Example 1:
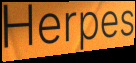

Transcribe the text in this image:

Herpes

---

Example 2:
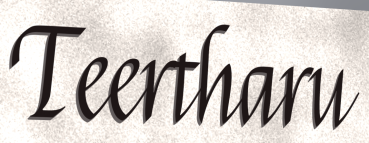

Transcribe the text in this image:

Teertharu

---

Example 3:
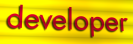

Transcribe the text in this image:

developer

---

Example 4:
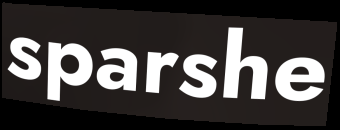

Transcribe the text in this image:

sparshe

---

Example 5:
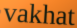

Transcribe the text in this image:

vakhat